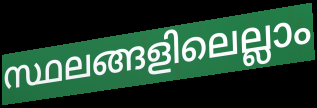
സ്ഥലങ്ങളിലെല്ലാം